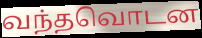
வந்தவொடன